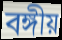
বঙ্গীয়